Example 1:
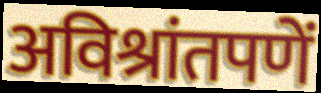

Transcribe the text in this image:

अविश्रांतपणें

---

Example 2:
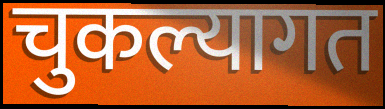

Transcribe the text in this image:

चुकल्यागत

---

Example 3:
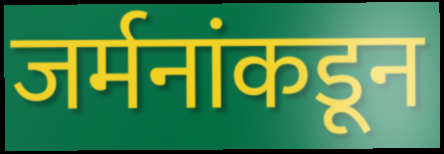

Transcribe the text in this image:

जर्मनांकडून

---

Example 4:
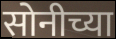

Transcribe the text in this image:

सोनीच्या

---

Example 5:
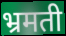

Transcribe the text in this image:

भ्रमती